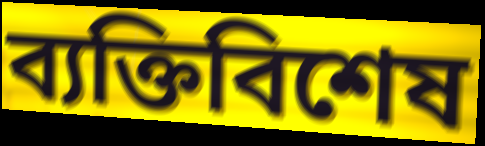
ব্যক্তিবিশেষ